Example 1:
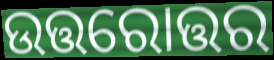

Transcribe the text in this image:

ଉତ୍ତରୋତ୍ତର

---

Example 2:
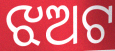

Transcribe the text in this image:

ଝଅଟ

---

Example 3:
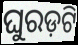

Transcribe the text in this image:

ଘୁରଡ଼ଟି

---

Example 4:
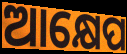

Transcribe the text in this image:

ଆକ୍ଷେପ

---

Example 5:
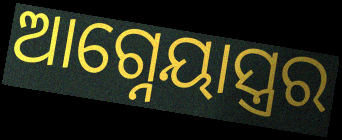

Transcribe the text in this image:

ଆଗ୍ନେୟାସ୍ତ୍ରର